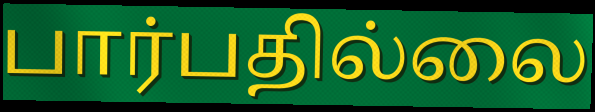
பார்பதில்லை